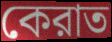
কেরাত